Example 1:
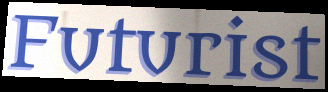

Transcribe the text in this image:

Futurist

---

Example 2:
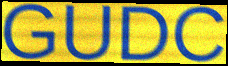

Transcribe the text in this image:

GUDC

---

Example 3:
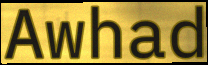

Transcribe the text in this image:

Awhad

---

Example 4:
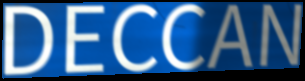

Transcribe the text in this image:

DECCAN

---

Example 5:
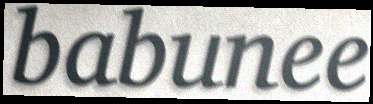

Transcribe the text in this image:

babunee